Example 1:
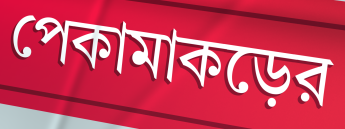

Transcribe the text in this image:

পেকামাকড়ের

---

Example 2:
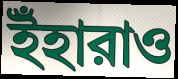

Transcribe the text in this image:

ইঁহারাও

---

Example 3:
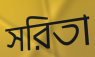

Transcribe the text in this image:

সরিতা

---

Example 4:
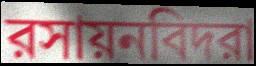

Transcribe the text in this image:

রসায়নবিদরা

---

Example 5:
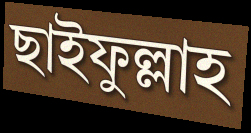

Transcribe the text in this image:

ছাইফুল্লাহ